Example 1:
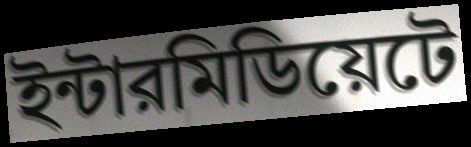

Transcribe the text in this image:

ইন্টারমিডিয়েটে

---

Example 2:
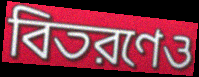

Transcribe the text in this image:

বিতরণেও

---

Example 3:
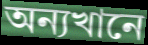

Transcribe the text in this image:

অন্যখানে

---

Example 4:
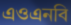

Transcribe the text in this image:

এওএনবি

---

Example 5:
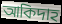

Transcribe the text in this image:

আকিদাহ